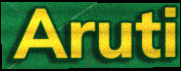
Aruti